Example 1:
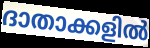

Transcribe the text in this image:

ദാതാക്കളിൽ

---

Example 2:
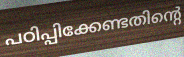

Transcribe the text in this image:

പഠിപ്പിക്കേണ്ടതിന്റെ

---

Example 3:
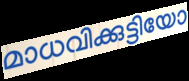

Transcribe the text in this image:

മാധവിക്കുട്ടിയോ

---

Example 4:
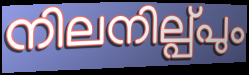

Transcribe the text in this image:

നിലനില്പ്പും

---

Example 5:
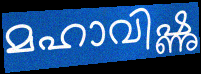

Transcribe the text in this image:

മഹാവിഷ്ണു